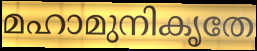
മഹാമുനികൃതേ